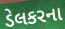
ડેલકરના